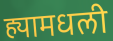
ह्यामधली